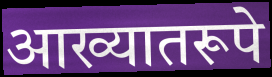
आख्यातरूपे